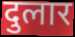
दुलार